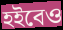
হইবেও